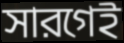
সারগেই